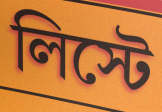
লিস্টে